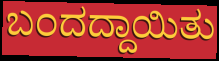
ಬಂದದ್ದಾಯಿತು